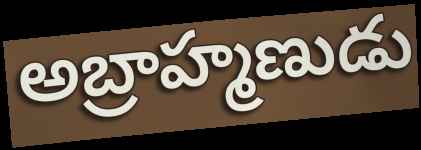
అబ్రాహ్మణుడు